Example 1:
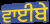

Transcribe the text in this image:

ਵਾਈਬੇ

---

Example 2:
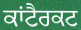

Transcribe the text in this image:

ਕਾਂਟੈਰਕਟ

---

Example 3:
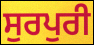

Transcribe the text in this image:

ਸੁਰਪੁਰੀ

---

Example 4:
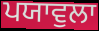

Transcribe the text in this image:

ਪਯਾਵੁਲਾ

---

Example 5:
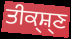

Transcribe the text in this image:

ਤੀਕ੍ਸ਼੍ਣ